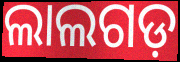
ଲାଲଗଡ଼